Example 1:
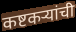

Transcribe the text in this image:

कष्टकऱ्यांची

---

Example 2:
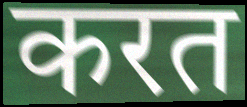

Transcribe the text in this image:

करत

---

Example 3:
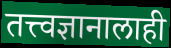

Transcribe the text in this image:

तत्त्वज्ञानालाही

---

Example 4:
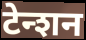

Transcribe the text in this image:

टेन्शन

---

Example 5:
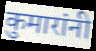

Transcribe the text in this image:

कुमारांनी